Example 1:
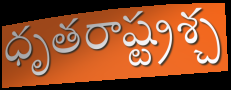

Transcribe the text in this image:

ధృతరాష్ట్రశ్చ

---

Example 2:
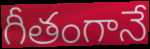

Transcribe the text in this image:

గీతంగానే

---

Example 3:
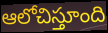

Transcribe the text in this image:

ఆలోచిస్తూంది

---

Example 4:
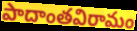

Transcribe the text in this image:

పాదాంతవిరామం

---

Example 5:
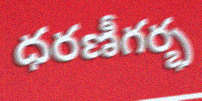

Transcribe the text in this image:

ధరణీగర్భ